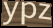
ypz